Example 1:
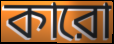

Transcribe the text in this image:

কারো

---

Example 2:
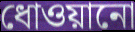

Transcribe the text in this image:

ধোওয়ানো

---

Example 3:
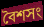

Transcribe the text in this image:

বৈশসং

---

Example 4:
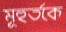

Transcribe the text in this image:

মূহুর্তকে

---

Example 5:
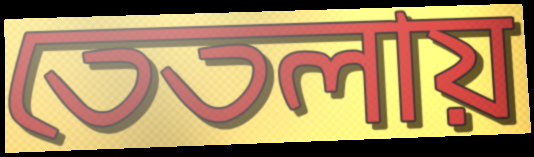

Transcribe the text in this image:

তেতলায়